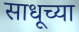
साधूच्या